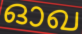
ഓഖ